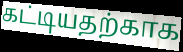
கட்டியதற்காக